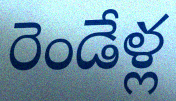
రెండేళ్ల